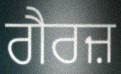
ਗੈਰਜ਼